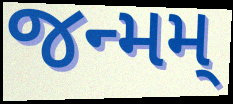
જન્મમ્